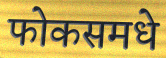
फोकसमधे